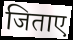
जिताए